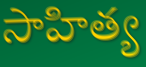
సాహిత్య